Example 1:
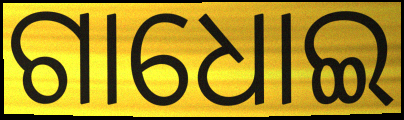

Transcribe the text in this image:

ଗାଧୋଇ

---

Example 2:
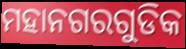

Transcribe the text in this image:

ମହାନଗରଗୁଡିକ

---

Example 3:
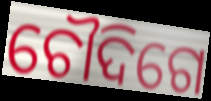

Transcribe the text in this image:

ଚୌଦିଗେ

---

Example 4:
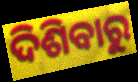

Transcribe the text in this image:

ଦିଶିବାରୁ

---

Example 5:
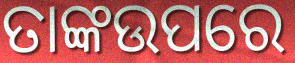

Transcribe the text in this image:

ତାଙ୍କଉପରେ